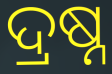
ଦ୍ରଷ୍ନ